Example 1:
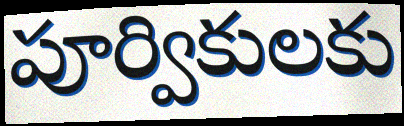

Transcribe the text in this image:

పూర్వికులకు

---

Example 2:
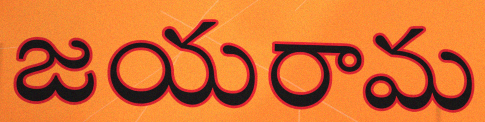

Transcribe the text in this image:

జయరామ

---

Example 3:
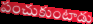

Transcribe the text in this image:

పంచుకుంటాడు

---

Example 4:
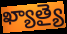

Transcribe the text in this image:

ఖ్యాత్యై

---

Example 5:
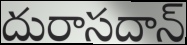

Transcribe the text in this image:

దురాసదాన్